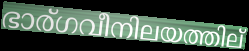
ഭാര്ഗവീനിലയത്തില്